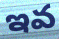
ఇవ